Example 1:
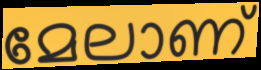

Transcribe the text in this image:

മേലാണ്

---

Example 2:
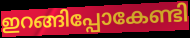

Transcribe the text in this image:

ഇറങ്ങിപ്പോകേണ്ടി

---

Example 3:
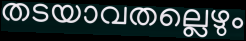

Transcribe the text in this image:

തടയാവതല്ലെഴും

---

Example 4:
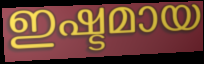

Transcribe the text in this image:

ഇഷ്ടമായ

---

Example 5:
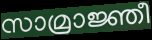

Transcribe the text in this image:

സാമ്രാജ്ഞീ